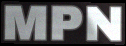
MPN